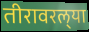
तीरावरल्या